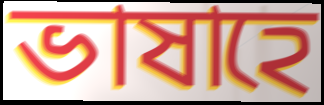
ভাষাহে